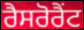
ਰੈਸਰੋਰੈਂਟ